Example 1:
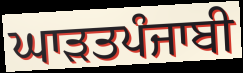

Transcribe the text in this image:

ਘਾੜਤਪੰਜਾਬੀ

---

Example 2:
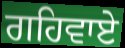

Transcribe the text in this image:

ਗਹਿਵਾਏ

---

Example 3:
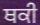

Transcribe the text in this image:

ਥਕੀ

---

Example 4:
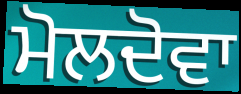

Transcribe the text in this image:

ਮੋਲਦੋਵਾ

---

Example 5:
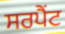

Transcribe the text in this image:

ਸਰਪੈਂਟ